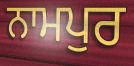
ਨਾਮਪੁਰ